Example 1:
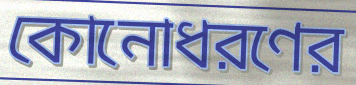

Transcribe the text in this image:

কোনোধরণের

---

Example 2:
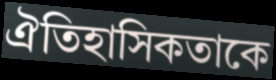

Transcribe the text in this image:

ঐতিহাসিকতাকে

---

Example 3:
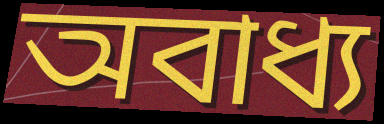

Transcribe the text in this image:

অবাধ্য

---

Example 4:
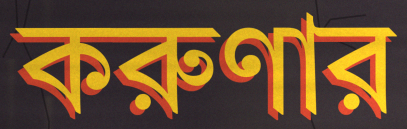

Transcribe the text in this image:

করুণার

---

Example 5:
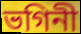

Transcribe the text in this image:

ভগিনী